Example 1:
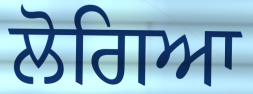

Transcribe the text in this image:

ਲੋਗਿਆ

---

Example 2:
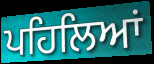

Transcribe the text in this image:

ਪਹਿਲਿਆਂ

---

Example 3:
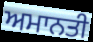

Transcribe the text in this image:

ਅਮਾਨਤੀ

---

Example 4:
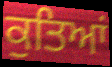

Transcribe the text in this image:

ਕੁਤਿਆਂ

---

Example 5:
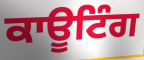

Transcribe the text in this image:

ਕਾਊਟਿੰਗ